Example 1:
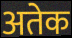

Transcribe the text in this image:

अतेक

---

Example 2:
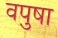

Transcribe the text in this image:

वपुषा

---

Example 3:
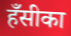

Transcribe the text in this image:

हँसीका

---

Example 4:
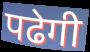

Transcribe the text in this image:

पढेगी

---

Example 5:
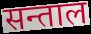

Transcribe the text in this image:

सन्ताल